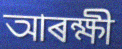
আৰক্ষী